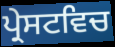
ਪ੍ਰੇਸਟਵਿਚ